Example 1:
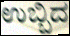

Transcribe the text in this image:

ಉಬ್ಬಿದ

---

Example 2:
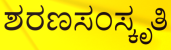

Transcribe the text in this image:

ಶರಣಸಂಸ್ಕೃತಿ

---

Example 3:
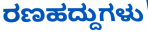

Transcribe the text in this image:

ರಣಹದ್ದುಗಳು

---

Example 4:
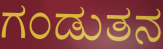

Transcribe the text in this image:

ಗಂಡುತನ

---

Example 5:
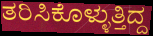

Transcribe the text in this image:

ತರಿಸಿಕೊಳ್ಳುತ್ತಿದ್ದ